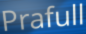
Prafull